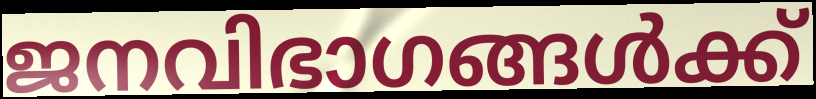
ജനവിഭാഗങ്ങൾക്ക്